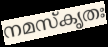
നമസ്കൃതഃ